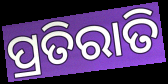
ପ୍ରତିରାତି